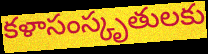
కళాసంస్కృతులకు